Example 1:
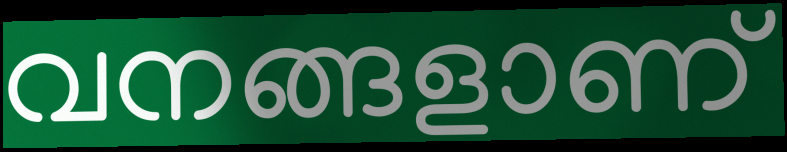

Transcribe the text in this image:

വനങ്ങളാണ്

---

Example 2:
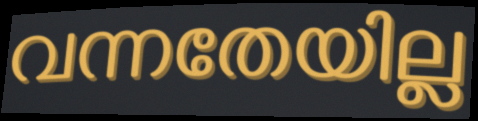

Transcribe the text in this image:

വന്നതേയില്ല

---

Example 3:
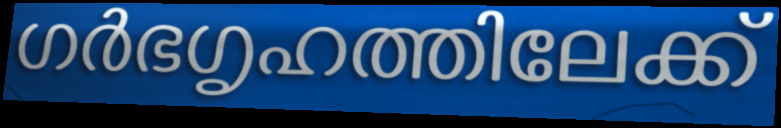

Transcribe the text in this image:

ഗർഭഗൃഹത്തിലേക്ക്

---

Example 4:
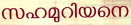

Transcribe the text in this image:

സഹമുറിയനെ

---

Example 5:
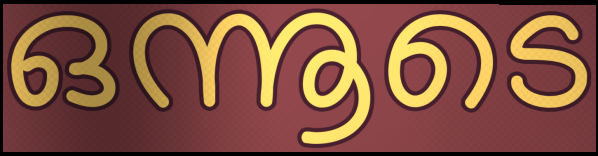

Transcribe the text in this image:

ഒന്നൂടെ